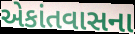
એકાંતવાસના